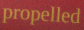
propelled